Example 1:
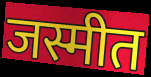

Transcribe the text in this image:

जस्मीत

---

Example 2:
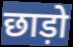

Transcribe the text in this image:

छाड़ो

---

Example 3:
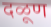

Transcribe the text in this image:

दळूण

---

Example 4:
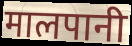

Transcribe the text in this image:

मालपानी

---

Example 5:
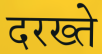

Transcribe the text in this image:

दरख्ते